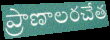
ప్రాణాలరచేత